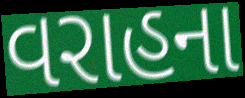
વરાહના